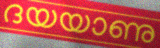
ദയയാണു